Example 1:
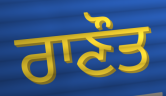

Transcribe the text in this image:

ਰਾਣੌਤ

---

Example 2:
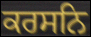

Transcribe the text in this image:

ਕਰਸਨਿ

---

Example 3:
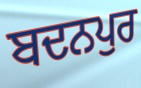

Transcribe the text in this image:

ਬਦਨਪੁਰ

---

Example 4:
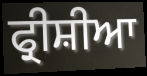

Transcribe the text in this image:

ਫ੍ਰੀਸ਼ੀਆ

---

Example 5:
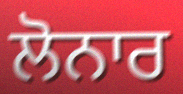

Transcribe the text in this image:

ਲੋਨਾਰ